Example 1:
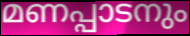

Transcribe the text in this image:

മണപ്പാടനും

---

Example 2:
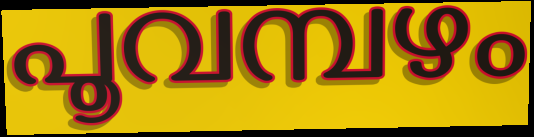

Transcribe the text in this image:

പൂവമ്പഴം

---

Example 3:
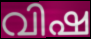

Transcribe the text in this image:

വിഷ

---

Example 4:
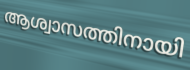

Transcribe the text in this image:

ആശ്വാസത്തിനായി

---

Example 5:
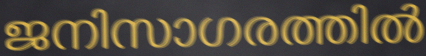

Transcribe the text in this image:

ജനിസാഗരത്തിൽ